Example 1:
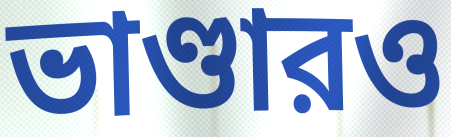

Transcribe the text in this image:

ভাণ্ডারও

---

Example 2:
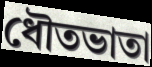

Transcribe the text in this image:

ধৌতভাতা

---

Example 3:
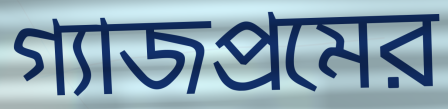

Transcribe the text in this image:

গ্যাজপ্রমের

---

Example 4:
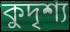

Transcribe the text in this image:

কুদৃশ্য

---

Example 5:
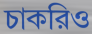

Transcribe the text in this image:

চাকরিও